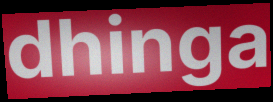
dhinga